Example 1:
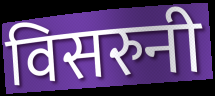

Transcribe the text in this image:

विसरुनी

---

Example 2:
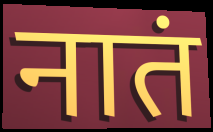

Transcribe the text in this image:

नातं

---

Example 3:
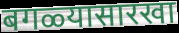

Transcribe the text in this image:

बगळ्यासारखा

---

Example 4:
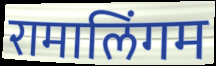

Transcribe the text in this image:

रामालिंगम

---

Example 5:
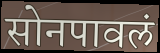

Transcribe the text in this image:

सोनपावलं